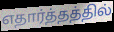
எதார்த்தத்தில்